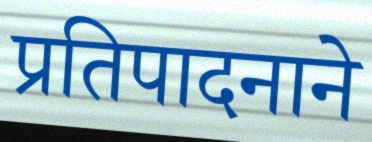
प्रतिपादनाने